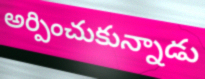
అర్పించుకున్నాడు